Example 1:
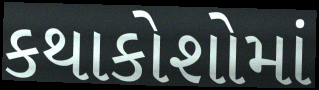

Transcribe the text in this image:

કથાકોશોમાં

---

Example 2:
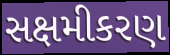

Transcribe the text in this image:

સક્ષમીકરણ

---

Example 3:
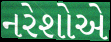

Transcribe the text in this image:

નરેશોએ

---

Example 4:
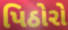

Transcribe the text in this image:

પિઠોરો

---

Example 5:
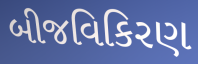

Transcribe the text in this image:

બીજવિકિરણ